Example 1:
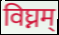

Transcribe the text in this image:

विघ्नम्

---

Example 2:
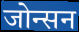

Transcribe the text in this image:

जोन्सन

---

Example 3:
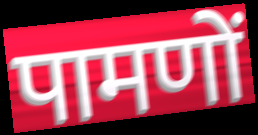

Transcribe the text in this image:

पामणों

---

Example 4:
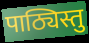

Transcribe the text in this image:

पाठ्यिस्तु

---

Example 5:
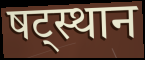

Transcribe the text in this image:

षट्स्थान